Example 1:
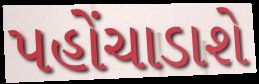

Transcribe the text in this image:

પહોંચાડાશે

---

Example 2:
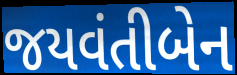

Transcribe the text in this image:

જયવંતીબેન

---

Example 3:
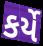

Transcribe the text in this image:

કર્યે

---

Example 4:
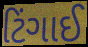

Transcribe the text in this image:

ટિંગાઈ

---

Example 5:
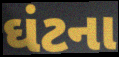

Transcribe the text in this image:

ઘંટના